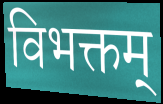
विभक्तम्